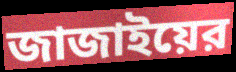
জাজাইয়ের